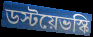
ডস্টয়েভস্কি